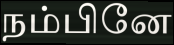
நம்பினே